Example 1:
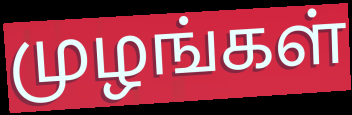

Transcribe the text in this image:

முழங்கள்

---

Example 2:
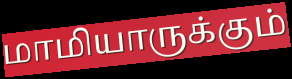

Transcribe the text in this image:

மாமியாருக்கும்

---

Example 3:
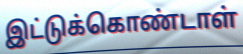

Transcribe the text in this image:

இட்டுக்கொண்டாள்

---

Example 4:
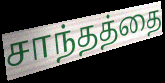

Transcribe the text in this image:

சாந்தத்தை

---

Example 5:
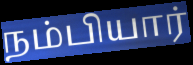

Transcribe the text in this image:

நம்பியார்